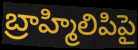
బ్రాహ్మిలిపిపై